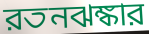
রতনঝঙ্কার